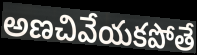
అణచివేయకపోతే